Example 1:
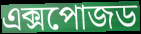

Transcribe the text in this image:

এক্সপোজড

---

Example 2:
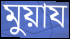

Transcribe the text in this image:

মুয়ায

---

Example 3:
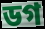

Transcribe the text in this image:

ডগ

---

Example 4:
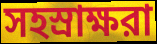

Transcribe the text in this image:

সহস্রাক্ষরা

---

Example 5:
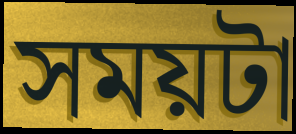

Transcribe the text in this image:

সময়টা